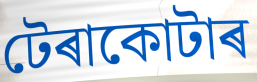
টেৰাকোটাৰ